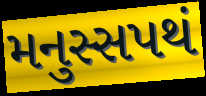
મનુસ્સપથં